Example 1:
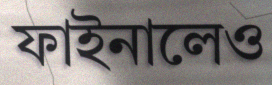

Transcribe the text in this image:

ফাইনালেও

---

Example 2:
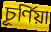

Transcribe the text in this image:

চূর্ণিয়া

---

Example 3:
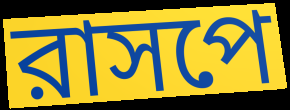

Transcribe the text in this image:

রাসপে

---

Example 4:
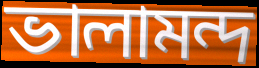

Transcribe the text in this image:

ভালামন্দ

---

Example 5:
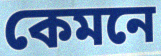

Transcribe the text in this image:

কেমনে